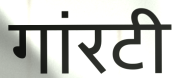
गांरटी